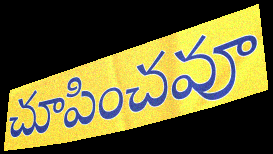
చూపించవూ